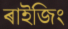
ৰাইজিং